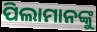
ପିଲାମାନଙ୍କୁ